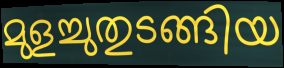
മുളച്ചുതുടങ്ങിയ